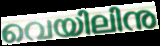
വെയിലിനു